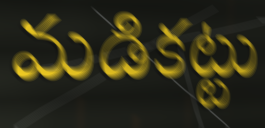
మడికట్టు